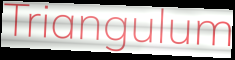
Triangulum